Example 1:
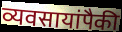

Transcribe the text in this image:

व्यवसायांपैकी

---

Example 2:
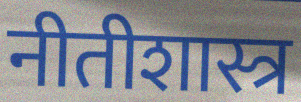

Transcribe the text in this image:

नीतीशास्त्र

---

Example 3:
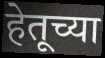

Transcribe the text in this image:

हेतूच्या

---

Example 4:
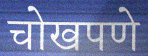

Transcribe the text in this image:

चोखपणे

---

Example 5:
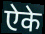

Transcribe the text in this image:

ऐके